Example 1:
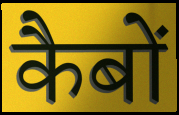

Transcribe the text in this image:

कैबों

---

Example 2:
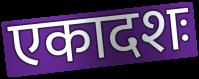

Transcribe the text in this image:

एकादशः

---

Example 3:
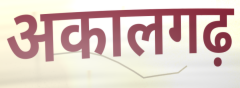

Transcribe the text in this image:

अकालगढ़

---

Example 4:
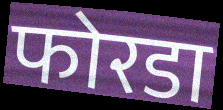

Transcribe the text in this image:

फोरडा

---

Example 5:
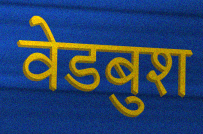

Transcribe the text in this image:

वेडबुश